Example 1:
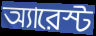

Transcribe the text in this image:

অ্যারেস্ট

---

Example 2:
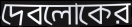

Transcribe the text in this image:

দেবলোকের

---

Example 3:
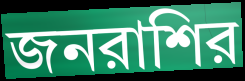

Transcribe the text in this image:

জনরাশির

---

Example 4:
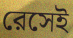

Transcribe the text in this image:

রেসেই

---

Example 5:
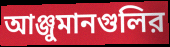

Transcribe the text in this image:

আঞ্জুমানগুলির